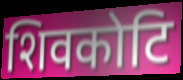
शिवकोटि